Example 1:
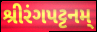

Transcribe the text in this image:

શ્રીરંગપટ્ટનમ્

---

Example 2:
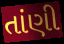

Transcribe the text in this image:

તાંણી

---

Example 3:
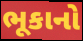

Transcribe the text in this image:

ભૂકાનો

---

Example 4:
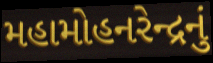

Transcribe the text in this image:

મહામોહનરેન્દ્રનું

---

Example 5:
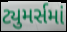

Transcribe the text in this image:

ટ્યુમર્સમાં